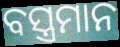
ବସ୍ତ୍ରମାନ